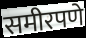
समीरपणे